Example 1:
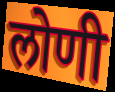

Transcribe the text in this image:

लोणी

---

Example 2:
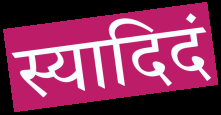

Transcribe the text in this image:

स्यादिदं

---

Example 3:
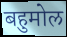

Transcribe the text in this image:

बहुमोल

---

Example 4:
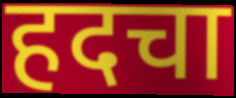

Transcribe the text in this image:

हदचा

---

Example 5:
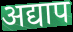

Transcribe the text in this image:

अद्याप